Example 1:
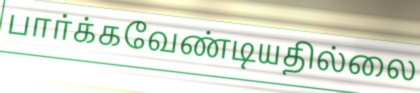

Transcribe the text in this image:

பார்க்கவேண்டியதில்லை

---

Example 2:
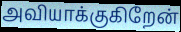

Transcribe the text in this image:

அவியாக்குகிறேன்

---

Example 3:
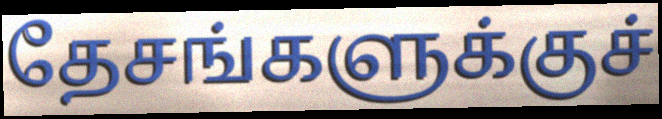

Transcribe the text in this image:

தேசங்களுக்குச்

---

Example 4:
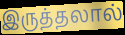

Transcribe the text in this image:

இருத்தலால்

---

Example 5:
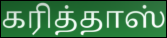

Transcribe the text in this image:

கரித்தாஸ்